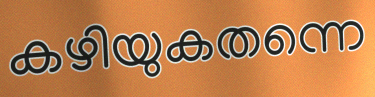
കഴിയുകതന്നെ